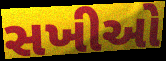
સખીઓ